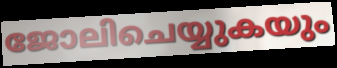
ജോലിചെയ്യുകയും